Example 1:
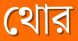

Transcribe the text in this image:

থোর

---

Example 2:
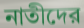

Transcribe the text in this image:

নাতীদের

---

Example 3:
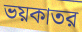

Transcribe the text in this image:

ভয়কাতর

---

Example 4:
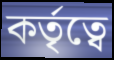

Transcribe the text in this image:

কর্তৃত্বে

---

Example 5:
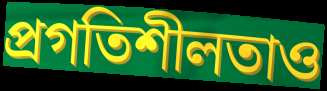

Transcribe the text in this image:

প্রগতিশীলতাও